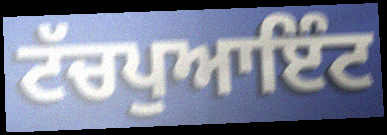
ਟੱਚਪੁਆਇੰਟ